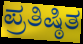
ಪ್ರತಿಷ್ಠಿತ